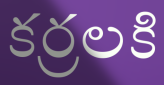
కర్రలకి